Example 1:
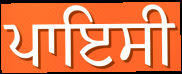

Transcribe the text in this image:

ਪਾਇਸੀ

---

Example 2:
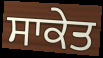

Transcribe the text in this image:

ਸਾਕੇਤ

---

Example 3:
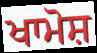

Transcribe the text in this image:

ਖਾਮੋਸ਼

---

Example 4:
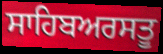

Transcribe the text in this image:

ਸਾਹਿਬਅਰਸਤੂ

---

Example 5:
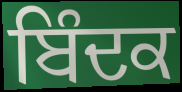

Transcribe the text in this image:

ਬਿੰਦਕ